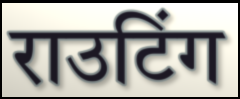
राउटिंग